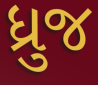
ધ્રુજ